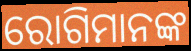
ରୋଗିମାନଙ୍କ